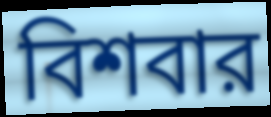
বিশবার